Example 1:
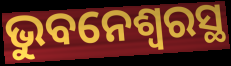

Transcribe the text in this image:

ଭୁବନେଶ୍ଵରସ୍ଥ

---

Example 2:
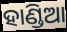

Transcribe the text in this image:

ହାଣ୍ଡିଆ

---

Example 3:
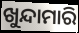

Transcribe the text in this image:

ଖୁନ୍ଦାମାରି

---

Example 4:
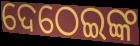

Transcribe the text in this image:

ଦେଠେଇଙ୍କ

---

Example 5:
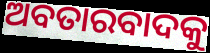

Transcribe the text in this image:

ଅବତାରବାଦକୁ